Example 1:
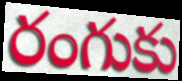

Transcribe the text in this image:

రంగుకు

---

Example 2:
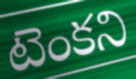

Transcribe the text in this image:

టెంకని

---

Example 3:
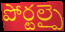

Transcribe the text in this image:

పోర్టల్పై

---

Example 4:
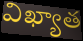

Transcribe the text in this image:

విఖ్యాత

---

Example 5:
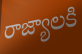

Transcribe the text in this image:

రాజ్యాలకి